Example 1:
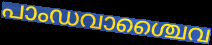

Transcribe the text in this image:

പാംഡവാശ്ചൈവ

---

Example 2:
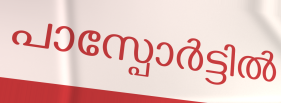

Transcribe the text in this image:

പാസ്പോർട്ടിൽ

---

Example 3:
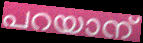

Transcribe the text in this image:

പറയാന്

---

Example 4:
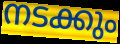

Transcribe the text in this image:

നടക്കും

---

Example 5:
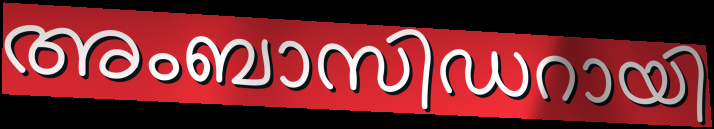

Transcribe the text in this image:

അംബാസിഡറായി